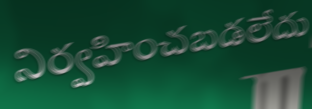
నిర్వహించబడలేదు